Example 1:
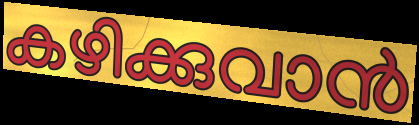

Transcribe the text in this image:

കഴിക്കുവാൻ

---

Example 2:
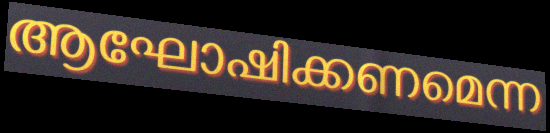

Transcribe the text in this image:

ആഘോഷിക്കണമെന്ന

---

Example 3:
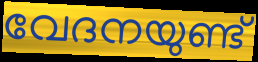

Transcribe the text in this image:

വേദനയുണ്ട്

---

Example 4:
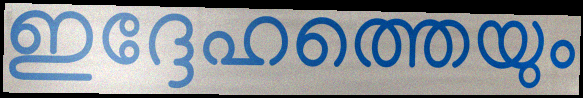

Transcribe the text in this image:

ഇദ്ദേഹത്തെയും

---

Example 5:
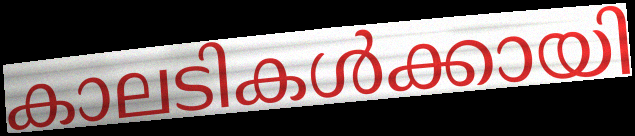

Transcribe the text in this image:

കാലടികൾക്കായി